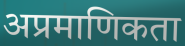
अप्रमाणिकता